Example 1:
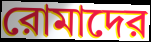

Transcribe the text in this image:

রোমাদের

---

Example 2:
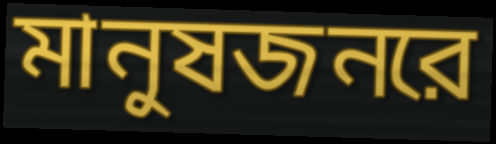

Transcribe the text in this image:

মানুষজনরে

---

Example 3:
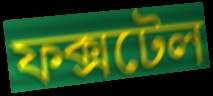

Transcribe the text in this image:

ফক্সটেল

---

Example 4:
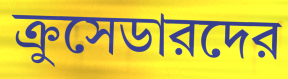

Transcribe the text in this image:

ক্রুসেডারদের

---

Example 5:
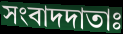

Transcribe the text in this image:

সংবাদদাতাঃ